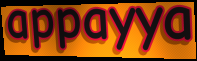
appayya